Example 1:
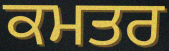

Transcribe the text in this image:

ਕਮਤਰ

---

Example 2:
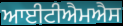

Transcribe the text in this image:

ਆਈਟੀਐਮਐਸ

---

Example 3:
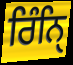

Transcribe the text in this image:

ਰਿੰਨਿੑ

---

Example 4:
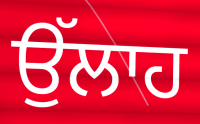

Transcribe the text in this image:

ਉੱਲਾਹ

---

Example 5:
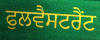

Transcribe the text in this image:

ਫੁਲਵੈਸਟਰੈਂਟ